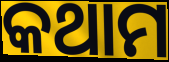
କଥାମ